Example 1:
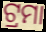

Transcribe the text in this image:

ଟ୍ରମା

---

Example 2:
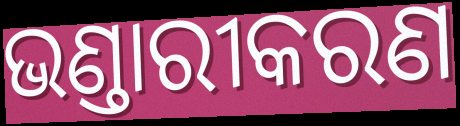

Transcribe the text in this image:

ଭଣ୍ଡାରୀକରଣ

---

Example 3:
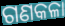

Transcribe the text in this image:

ଗଣକଳା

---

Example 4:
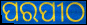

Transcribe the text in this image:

ପରପୀଠ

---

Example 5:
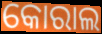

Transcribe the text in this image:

କୋରାଲ